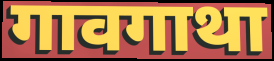
गावगाथा